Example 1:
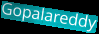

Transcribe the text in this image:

Gopalareddy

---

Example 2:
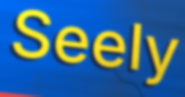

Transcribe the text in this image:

Seely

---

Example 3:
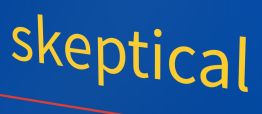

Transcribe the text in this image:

skeptical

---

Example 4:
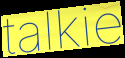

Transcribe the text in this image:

talkie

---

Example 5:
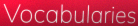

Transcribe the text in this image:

Vocabularies